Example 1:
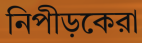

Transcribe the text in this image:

নিপীড়কেরা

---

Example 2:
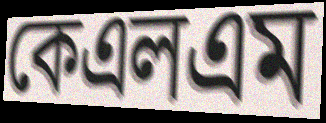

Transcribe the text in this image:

কেএলএম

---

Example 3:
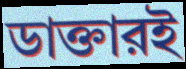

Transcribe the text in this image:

ডাক্তারই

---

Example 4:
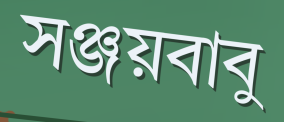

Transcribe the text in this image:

সঞ্জয়বাবু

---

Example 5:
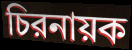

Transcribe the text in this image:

চিরনায়ক